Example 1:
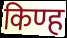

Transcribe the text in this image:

किण्ह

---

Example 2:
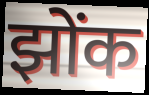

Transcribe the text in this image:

झोंक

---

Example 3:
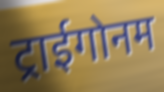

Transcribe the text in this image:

ट्राईगोनम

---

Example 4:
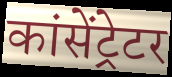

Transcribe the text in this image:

कांसेंट्रेटर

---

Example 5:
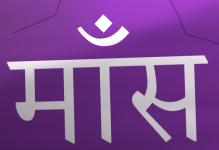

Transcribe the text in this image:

मॉंस